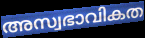
അസ്വഭാവികത